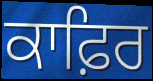
ਕਾਫ਼ਿਰ